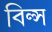
বিল্স